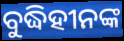
ବୁଦ୍ଧିହୀନଙ୍କ